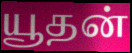
யூதன்